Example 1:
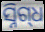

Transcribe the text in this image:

ସ୍ନିଗ୍‍ଧ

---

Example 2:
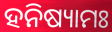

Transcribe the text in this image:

ହନିଷ୍ୟାମଃ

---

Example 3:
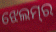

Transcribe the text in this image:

ଝେଲମ୍‌ର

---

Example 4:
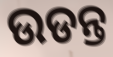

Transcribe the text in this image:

ଉଡନ୍ତ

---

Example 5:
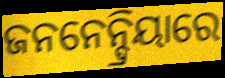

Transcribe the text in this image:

ଜନନେନ୍ଦ୍ରିୟାରେ